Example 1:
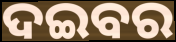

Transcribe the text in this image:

ଦଇବର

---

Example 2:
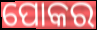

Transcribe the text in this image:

ପୋକର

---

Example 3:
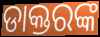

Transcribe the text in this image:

ଡାକ୍ତରଙ୍କ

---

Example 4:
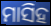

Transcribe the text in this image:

ମାସିହ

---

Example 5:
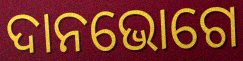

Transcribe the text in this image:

ଦାନଭୋଗେ